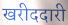
खरीददारी